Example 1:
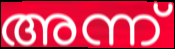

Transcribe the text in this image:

അന്ന്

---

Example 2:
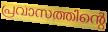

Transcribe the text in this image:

പ്രവാസത്തിന്റെ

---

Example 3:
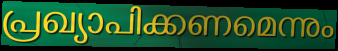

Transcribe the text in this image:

പ്രഖ്യാപിക്കണമെന്നും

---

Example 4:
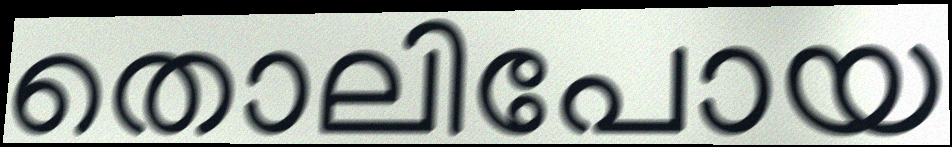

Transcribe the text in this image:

തൊലിപോയ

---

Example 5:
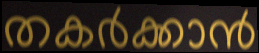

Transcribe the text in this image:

തകർക്കാൻ